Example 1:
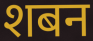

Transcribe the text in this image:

शबन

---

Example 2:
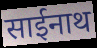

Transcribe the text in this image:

साईनाथ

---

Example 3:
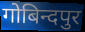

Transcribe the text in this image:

गोबिन्दपुर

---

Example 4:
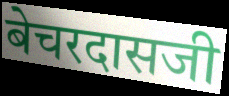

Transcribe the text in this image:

बेचरदासजी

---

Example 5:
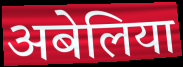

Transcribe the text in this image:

अबेलिया